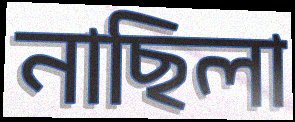
নাছিলা